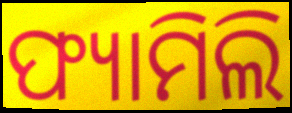
ଫ୍ୟାମିଲି